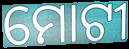
ମୋଟୀ